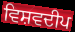
ਵਿਸ਼ਵਦੀਪ